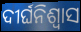
ଦୀର୍ଘନିଶ୍ୱାସ